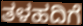
ತಳಹದಿಗೆ